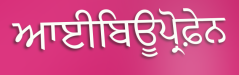
ਆਈਬਿਊਪ੍ਰੋਫ਼ੇਨ